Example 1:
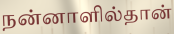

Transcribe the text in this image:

நன்னாளில்தான்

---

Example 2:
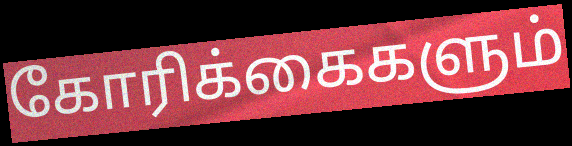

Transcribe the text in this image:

கோரிக்கைகளும்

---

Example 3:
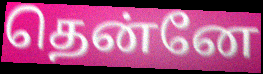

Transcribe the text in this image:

தென்னே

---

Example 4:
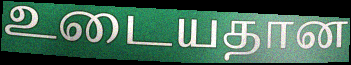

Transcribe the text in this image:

உடையதான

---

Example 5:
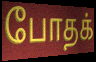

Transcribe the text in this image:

போதக்